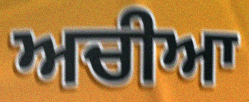
ਅਚੀਆ